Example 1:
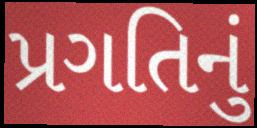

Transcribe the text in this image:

પ્રગતિનું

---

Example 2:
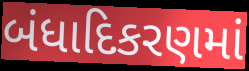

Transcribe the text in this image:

બંધાદિકરણમાં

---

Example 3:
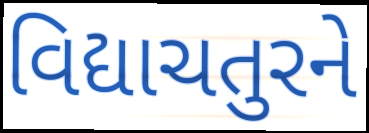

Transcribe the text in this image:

વિદ્યાચતુરને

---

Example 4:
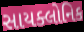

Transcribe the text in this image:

સાયક્લોનિક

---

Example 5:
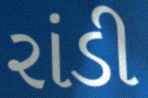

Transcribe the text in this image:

રાંડી